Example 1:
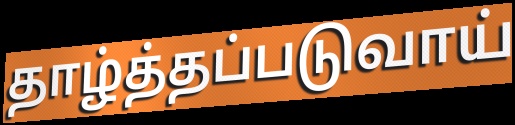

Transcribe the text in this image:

தாழ்த்தப்படுவாய்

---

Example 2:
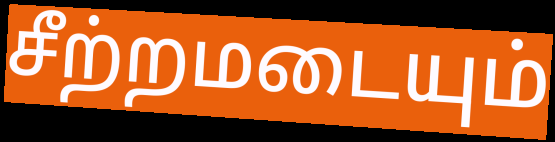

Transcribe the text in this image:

சீற்றமடையும்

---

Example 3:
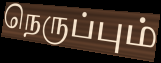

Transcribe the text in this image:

நெருப்பும்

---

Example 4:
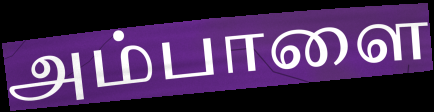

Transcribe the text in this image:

அம்பாளை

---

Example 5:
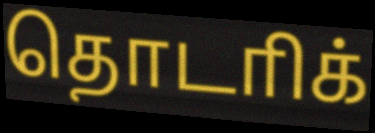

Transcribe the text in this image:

தொடரிக்